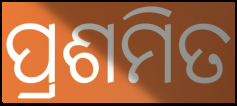
ପ୍ରଶମିତ